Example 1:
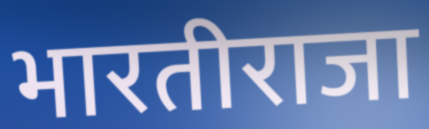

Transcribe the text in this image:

भारतीराजा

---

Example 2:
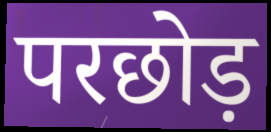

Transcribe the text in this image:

परछोड़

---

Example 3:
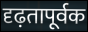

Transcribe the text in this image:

दृढ़तापूर्वक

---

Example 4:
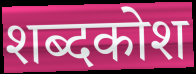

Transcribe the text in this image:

शब्दकोश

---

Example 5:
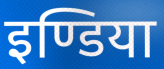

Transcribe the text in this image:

इण्डिया